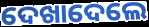
ଦେଖାଦେଲେ